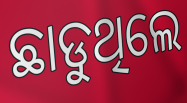
ଛାଡୁଥିଲେ